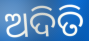
ଅଦିତି